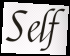
Self